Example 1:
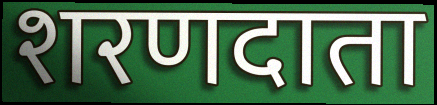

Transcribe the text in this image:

शरणदाता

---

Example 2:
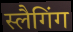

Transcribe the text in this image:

स्लैगिंग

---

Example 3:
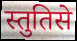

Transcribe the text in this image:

स्तुतिसे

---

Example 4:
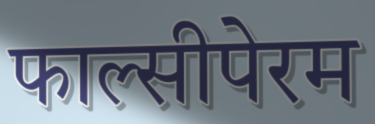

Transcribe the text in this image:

फाल्सीपेरम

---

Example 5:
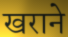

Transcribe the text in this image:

खराने